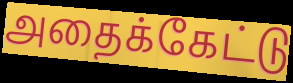
அதைக்கேட்டு